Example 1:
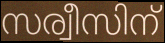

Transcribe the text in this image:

സര്വീസിന്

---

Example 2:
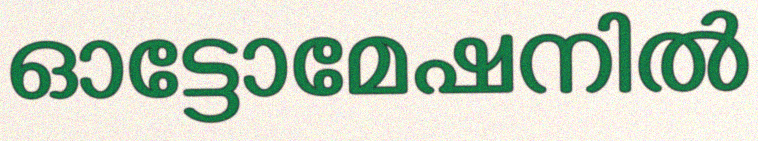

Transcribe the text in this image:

ഓട്ടോമേഷനിൽ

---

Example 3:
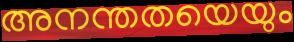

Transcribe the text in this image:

അനന്തതയെയും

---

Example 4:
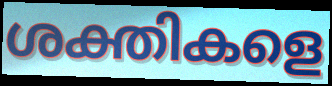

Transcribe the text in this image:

ശക്തികളെ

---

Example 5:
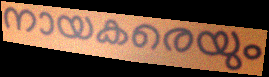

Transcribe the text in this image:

നായകരെയും